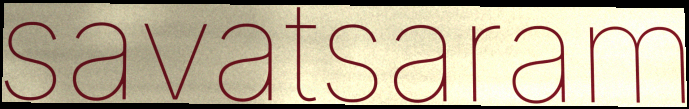
savatsaram